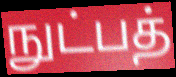
நுட்பத்